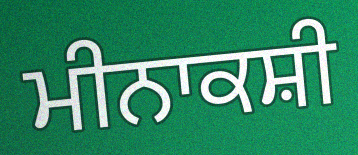
ਮੀਨਾਕਸ਼ੀ